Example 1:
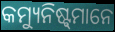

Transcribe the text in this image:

କମ୍ୟୁନିଷ୍ଟ୍‌ମାନେ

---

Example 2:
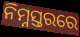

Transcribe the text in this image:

ନିମ୍ନସ୍ତରରେ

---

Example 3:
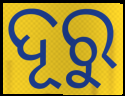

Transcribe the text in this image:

ଦୂରୁ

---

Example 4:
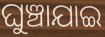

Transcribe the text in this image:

ଘୁଞ୍ଚାଯାଇ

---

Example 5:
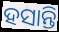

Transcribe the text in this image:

ହସାନ୍ତି